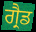
ਗ੍ਰੈਡ